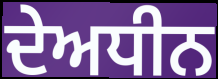
ਦੇਅਧੀਨ